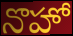
నొహో